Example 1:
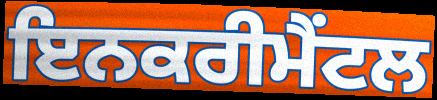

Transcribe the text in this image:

ਇਨਕਰੀਮੈਂਟਲ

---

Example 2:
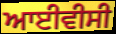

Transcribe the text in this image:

ਆਈਵੀਸੀ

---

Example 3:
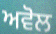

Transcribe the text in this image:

ਅਵੋਲ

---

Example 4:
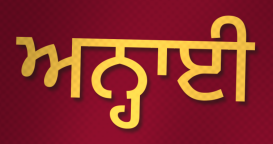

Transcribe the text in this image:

ਅਨ੍ਹਾਈ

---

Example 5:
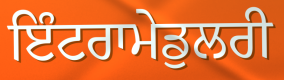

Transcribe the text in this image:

ਇੰਟਰਾਮੇਡੁਲਰੀ